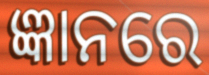
ଜ୍ଞାନରେ